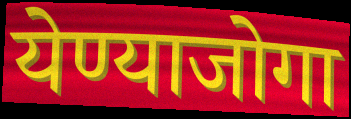
येण्याजोगा